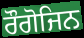
ਰੌਗੋਜਿਨ